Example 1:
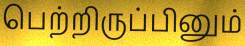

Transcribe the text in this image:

பெற்றிருப்பினும்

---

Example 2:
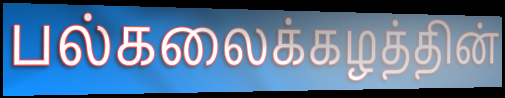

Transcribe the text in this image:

பல்கலைக்கழத்தின்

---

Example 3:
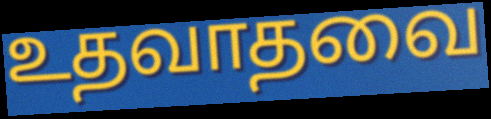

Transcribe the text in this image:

உதவாதவை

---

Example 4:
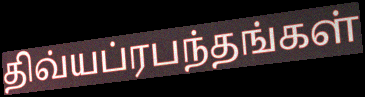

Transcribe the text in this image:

திவ்யப்ரபந்தங்கள்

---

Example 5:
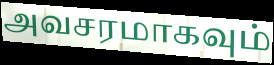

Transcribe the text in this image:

அவசரமாகவும்